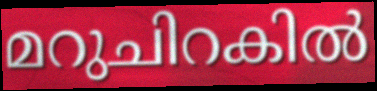
മറുചിറകിൽ